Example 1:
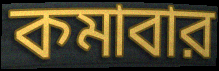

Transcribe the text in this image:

কমাবার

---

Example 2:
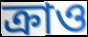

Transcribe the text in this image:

ক্রাও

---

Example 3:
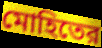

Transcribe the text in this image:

মোহিতের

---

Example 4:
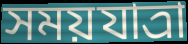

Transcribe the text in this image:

সময়যাত্রা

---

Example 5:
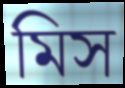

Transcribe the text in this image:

মিস